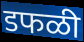
डफळी